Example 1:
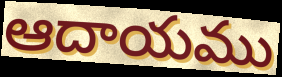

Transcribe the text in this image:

ఆదాయము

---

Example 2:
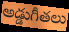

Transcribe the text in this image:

అడ్డుగీతలు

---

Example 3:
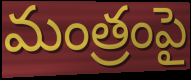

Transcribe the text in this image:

మంత్రంపై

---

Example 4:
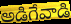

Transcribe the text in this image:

అడిగేవాడి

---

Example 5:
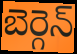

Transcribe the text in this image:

బెర్గెన్